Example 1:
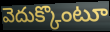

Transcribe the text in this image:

వెదుక్కొంటూ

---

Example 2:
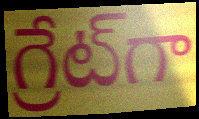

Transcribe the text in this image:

గ్రేట్‌గా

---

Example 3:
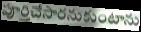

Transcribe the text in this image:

పూర్తిచేసారనుకుంటాను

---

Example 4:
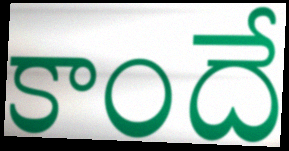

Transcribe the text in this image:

కాందే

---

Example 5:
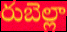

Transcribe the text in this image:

రుబెల్లా